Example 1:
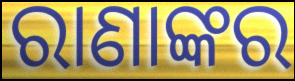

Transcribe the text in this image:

ରାଣାଙ୍କର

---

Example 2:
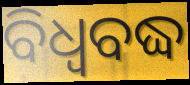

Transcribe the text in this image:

ବିଧ୍ଵବଦ୍ଧ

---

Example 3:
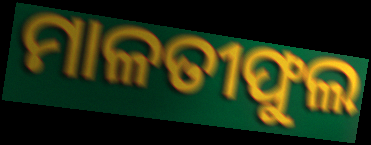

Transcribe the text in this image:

ମାଳତୀଫୁଲ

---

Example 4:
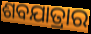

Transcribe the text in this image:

ଶବଯାତ୍ରାର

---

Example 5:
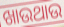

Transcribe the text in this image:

ଖାଉଥାଉ